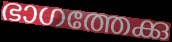
ഭാഗത്തേക്കു